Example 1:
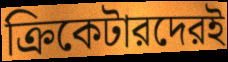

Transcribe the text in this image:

ক্রিকেটারদেরই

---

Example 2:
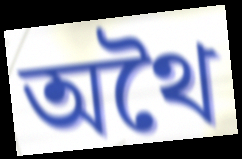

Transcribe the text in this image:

অথৈ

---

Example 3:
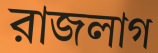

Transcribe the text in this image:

রাজলাগ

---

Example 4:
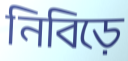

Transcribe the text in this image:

নিবিড়ে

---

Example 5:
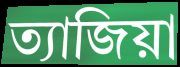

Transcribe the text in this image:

ত্যাজিয়া